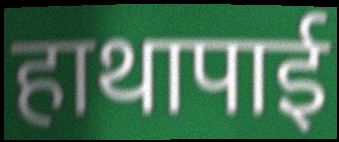
हाथापाई